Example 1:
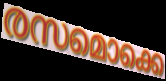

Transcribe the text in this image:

രസമൊക്കെ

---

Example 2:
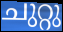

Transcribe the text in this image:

ചുറ്റു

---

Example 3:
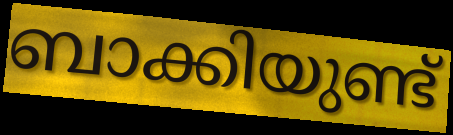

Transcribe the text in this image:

ബാക്കിയുണ്ട്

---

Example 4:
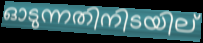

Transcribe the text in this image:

ഓടുന്നതിനിടയില്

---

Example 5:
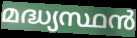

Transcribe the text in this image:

മദ്ധ്യസ്ഥൻ